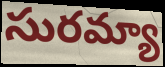
సురమ్యా